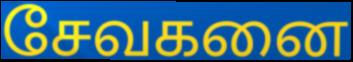
சேவகனை